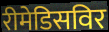
रीमेडिसविर